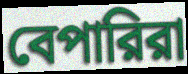
বেপারিরা